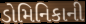
ડોમિનિકાની